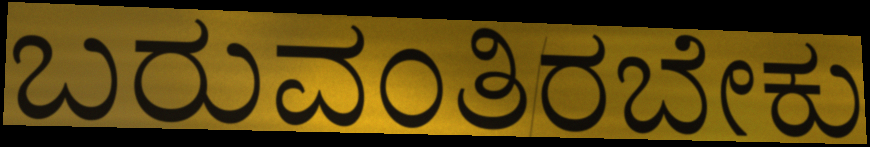
ಬರುವಂತಿರಬೇಕು